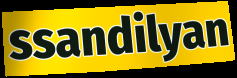
ssandilyan